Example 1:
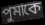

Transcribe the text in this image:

পুমাকে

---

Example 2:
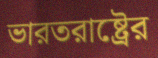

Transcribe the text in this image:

ভারতরাষ্ট্রের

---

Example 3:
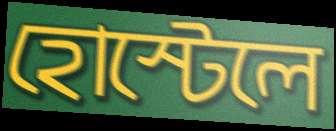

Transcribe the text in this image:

হোস্টেলে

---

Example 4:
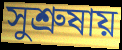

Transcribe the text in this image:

সুশ্রুষায়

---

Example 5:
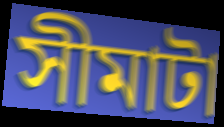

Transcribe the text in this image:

সীমাটা